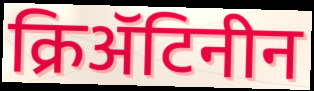
क्रिॲटिनीन